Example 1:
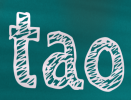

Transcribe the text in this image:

tao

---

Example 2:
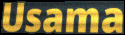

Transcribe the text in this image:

Usama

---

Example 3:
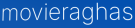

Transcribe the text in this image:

movieraghas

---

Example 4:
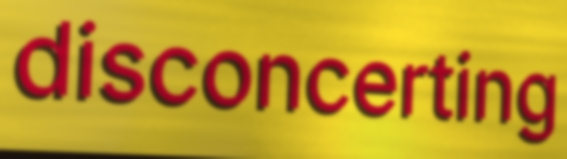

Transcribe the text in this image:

disconcerting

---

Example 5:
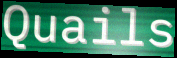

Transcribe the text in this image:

Quails